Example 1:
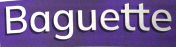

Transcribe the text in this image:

Baguette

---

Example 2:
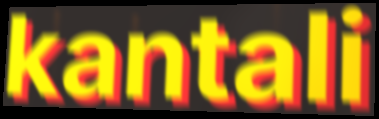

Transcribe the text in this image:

kantali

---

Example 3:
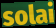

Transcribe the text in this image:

solai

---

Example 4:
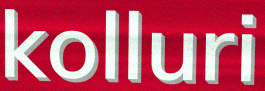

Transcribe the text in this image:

kolluri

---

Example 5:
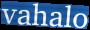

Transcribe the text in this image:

vahalo